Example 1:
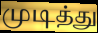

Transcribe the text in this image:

முடித்து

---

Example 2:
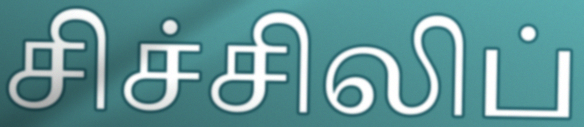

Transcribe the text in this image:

சிச்சிலிப்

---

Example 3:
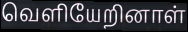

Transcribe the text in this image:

வெளியேறினாள்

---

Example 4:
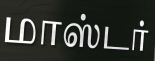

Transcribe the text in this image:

மாஸ்டர்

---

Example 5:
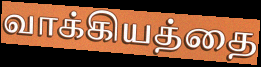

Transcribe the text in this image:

வாக்கியத்தை